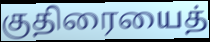
குதிரையைத்